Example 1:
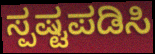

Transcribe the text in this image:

ಸ್ಪಷ್ಟಪಡಿಸಿ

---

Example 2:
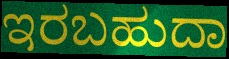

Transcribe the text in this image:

ಇರಬಹುದಾ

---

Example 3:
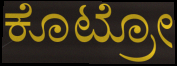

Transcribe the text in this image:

ಕೊಟ್ರೋ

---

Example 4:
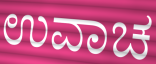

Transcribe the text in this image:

ಉವಾಚ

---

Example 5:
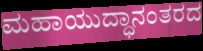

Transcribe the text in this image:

ಮಹಾಯುದ್ಧಾನಂತರದ